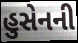
હુસેનની